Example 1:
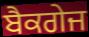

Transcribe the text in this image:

ਬੈਕਗੇਜ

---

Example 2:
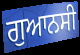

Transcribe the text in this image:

ਗੁਆਨਸੀ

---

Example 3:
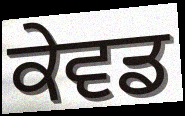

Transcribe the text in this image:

ਕੇਵਡ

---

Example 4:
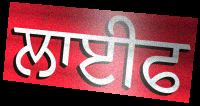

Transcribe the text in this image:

ਲਾਈਫ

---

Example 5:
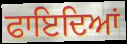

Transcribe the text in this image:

ਫਾਇਦਿਆਂ